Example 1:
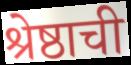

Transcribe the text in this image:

श्रेष्ठाची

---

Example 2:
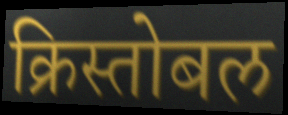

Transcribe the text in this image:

क्रिस्तोबल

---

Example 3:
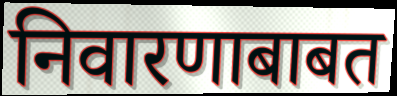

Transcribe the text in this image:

निवारणाबाबत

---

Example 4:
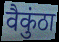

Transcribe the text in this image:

वैकुंठा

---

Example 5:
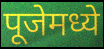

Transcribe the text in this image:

पूजेमध्ये